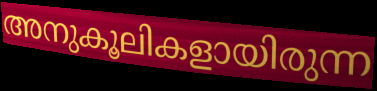
അനുകൂലികളായിരുന്ന